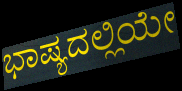
ಭಾಷ್ಯದಲ್ಲಿಯೇ